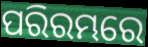
ପରିରମ୍ଭରେ